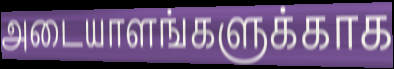
அடையாளங்களுக்காக